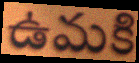
ఉమకి